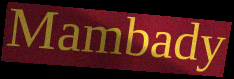
Mambady